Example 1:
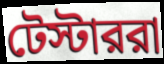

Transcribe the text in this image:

টেস্টাররা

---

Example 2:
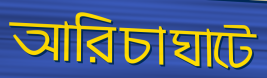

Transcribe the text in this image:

আরিচাঘাটে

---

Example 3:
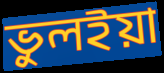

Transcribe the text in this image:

ভুলইয়া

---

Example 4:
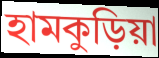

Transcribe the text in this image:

হামকুড়িয়া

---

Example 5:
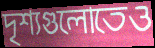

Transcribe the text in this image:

দৃশ্যগুলোতেও